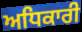
ਅਧਿਕਾਰੀ